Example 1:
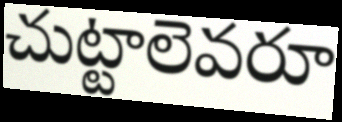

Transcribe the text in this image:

చుట్టాలెవరూ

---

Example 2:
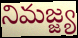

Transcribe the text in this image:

నిమజ్జ్య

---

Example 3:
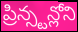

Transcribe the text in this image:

ప్రిన్స్టన్లోని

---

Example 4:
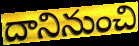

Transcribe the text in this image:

దానినుంచి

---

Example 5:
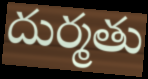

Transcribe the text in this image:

దుర్మతు